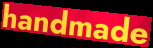
handmade